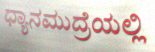
ಧ್ಯಾನಮುದ್ರೆಯಲ್ಲಿ